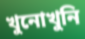
খুনোখুনি